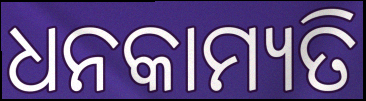
ଧନକାମ୍ୟତି